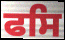
ਫਸਿ